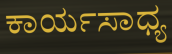
ಕಾರ್ಯಸಾಧ್ಯ